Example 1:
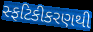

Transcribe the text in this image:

સ્ફટિકીકરણથી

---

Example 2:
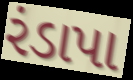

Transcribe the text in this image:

રંડાપા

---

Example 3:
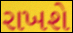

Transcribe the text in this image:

રાખશે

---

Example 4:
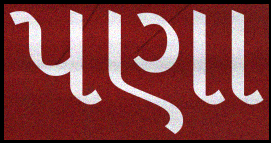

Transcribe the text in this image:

પણા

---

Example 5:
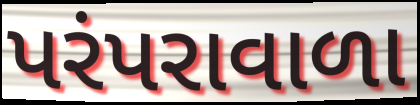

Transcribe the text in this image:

પરંપરાવાળા